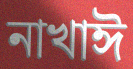
নাখাঈ